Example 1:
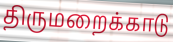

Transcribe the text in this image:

திருமறைக்காடு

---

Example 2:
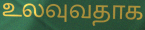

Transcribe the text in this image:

உலவுவதாக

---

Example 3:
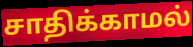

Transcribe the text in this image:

சாதிக்காமல்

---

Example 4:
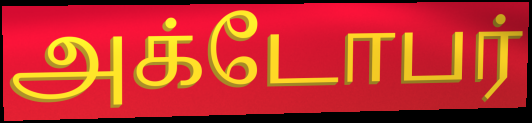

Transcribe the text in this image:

அக்டோபர்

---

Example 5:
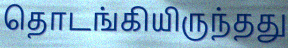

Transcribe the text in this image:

தொடங்கியிருந்தது